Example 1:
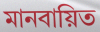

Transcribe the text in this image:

মানবায়িত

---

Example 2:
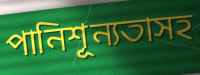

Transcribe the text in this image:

পানিশূন্যতাসহ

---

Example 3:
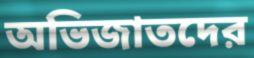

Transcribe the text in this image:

অভিজাতদের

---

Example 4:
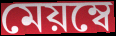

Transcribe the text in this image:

মেয়ম্বে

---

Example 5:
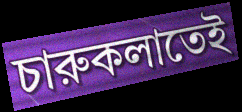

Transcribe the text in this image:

চারুকলাতেই